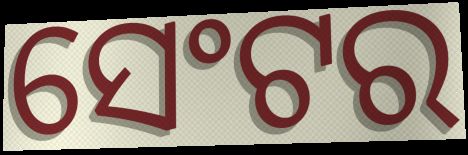
ସେଂଟର